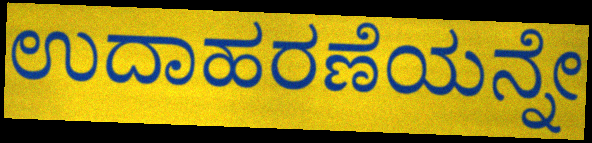
ಉದಾಹರಣೆಯನ್ನೇ